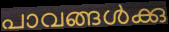
പാവങ്ങൾക്കു